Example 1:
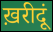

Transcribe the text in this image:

ख़रीदूं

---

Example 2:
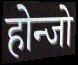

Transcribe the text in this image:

होन्जो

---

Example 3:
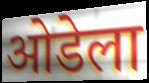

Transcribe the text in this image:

ओडेला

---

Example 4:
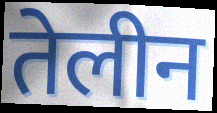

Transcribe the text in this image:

तेलीन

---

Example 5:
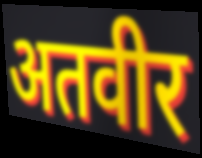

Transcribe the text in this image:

अतवीर